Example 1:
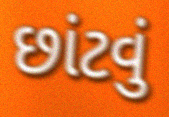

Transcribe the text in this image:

છાંટવું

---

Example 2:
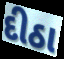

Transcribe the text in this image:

દીઠા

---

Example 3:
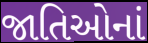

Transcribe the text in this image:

જાતિઓનાં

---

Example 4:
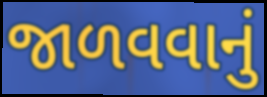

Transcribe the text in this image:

જાળવવાનું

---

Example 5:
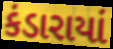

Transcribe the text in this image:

કંડારાયાં